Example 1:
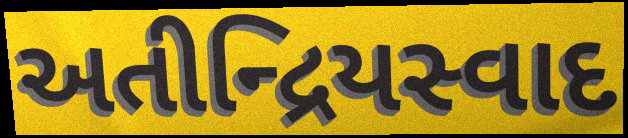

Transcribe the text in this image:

અતીન્દ્રિયસ્વાદ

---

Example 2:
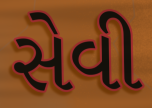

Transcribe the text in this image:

સેવી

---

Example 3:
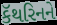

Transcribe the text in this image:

કૅથરિનને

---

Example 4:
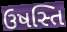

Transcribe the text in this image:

ઉષસ્તિ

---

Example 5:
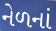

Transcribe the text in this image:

નેળનાં